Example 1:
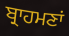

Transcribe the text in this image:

ਬ੍ਰਾਹਮਣਾਂ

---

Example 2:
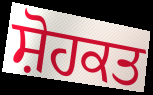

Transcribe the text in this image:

ਸ਼ੋਹਕਤ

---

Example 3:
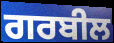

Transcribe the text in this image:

ਗਰਬੀਲ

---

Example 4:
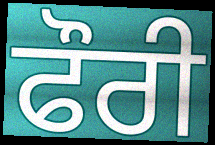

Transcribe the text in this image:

ਫੌਰੀ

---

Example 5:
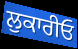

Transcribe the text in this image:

ਲੁਕਾਰੀਓ